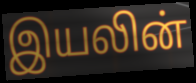
இயலின்